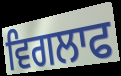
ਵਿਗਲਾਫ